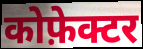
कोफ़ेक्टर